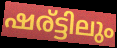
ഷര്ട്ടിലും